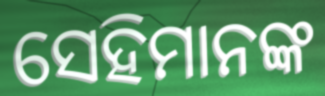
ସେହିମାନଙ୍କ